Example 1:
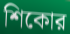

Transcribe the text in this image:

শিকোর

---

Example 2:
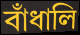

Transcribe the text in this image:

বাঁধালি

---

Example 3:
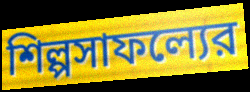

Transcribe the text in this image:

শিল্পসাফল্যের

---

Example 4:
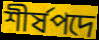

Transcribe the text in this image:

শীর্ষপদে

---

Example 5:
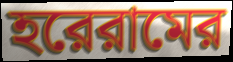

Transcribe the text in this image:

হরেরামের